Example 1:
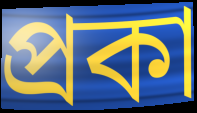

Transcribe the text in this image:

প্রকা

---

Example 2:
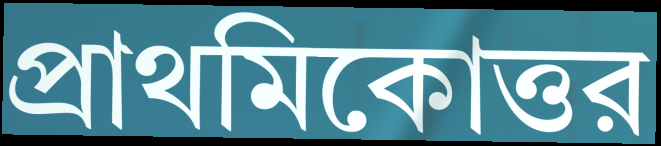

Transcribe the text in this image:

প্রাথমিকোত্তর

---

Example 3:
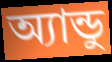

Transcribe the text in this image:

অ্যান্ডু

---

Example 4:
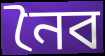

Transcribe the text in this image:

নৈব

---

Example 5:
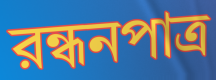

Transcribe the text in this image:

রন্ধনপাত্র